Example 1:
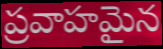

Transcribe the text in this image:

ప్రవాహమైన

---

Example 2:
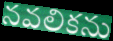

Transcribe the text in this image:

నవలికను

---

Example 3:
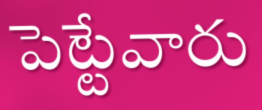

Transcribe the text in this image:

పెట్టేవారు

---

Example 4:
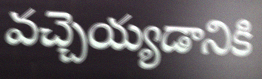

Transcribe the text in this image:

వచ్చెయ్యడానికి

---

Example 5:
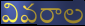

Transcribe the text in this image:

వివరాల